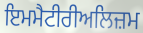
ਇਮਮੈਟੀਰੀਅਲਿਜ਼ਮ